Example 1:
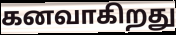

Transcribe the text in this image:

கனவாகிறது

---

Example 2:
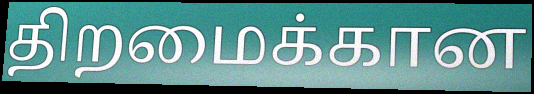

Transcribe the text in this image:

திறமைக்கான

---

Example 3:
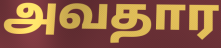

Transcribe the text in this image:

அவதார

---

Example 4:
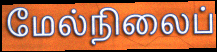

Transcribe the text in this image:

மேல்நிலைப்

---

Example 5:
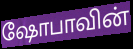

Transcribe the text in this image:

ஷோபாவின்